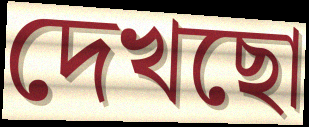
দেখছো